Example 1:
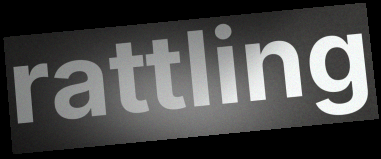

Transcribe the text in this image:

rattling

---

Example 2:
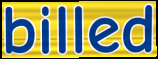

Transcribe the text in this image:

billed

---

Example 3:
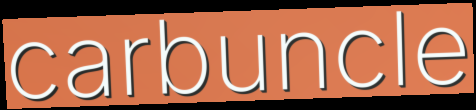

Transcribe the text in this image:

carbuncle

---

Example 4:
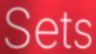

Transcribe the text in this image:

Sets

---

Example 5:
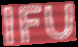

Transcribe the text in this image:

IFU